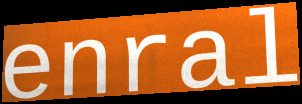
enral